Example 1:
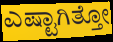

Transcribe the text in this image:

ಎಷ್ಟಾಗಿತ್ತೋ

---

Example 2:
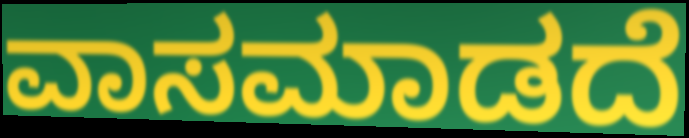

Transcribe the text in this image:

ವಾಸಮಾಡದೆ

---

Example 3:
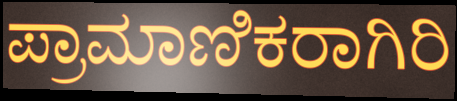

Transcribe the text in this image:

ಪ್ರಾಮಾಣಿಕರಾಗಿರಿ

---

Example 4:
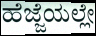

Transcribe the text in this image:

ಹೆಜ್ಜೆಯಲ್ಲೇ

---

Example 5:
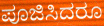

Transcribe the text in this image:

ಪೂಜಿಸಿದರೂ